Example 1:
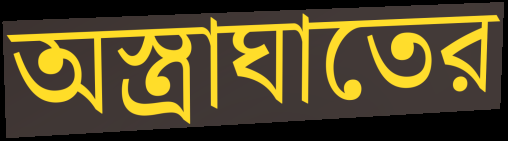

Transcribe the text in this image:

অস্ত্রাঘাতের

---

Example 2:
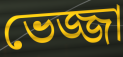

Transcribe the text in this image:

ভেজ্জা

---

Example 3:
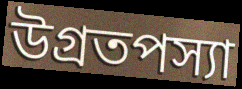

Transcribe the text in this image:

উগ্রতপস্যা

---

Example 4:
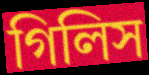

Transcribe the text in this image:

গিলিস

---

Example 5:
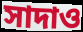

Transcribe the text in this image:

সাদাও